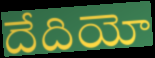
దేదియో